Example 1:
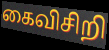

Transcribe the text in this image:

கைவிசிறி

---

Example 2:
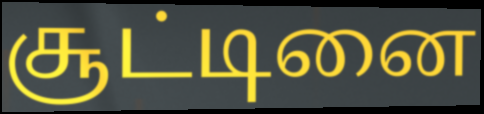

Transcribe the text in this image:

சூட்டினை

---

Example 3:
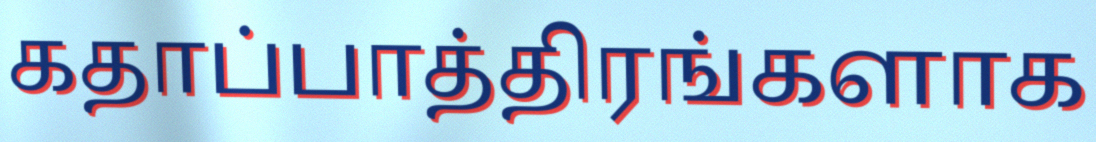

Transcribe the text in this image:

கதாப்பாத்திரங்களாக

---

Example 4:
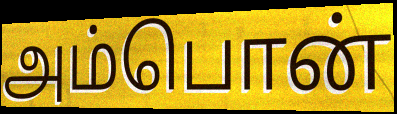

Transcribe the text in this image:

அம்பொன்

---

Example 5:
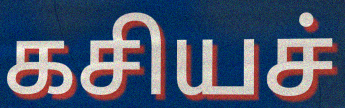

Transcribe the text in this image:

கசியச்